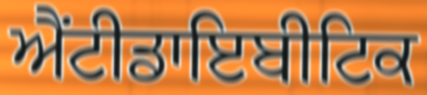
ਐਂਟੀਡਾਇਬੀਟਿਕ